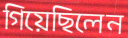
গিয়েছিলেন